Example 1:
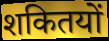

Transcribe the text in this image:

शकितयों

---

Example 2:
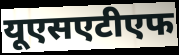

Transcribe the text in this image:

यूएसएटीएफ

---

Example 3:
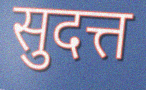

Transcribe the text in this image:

सुदत्त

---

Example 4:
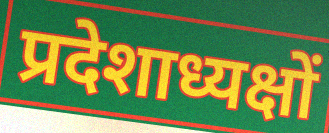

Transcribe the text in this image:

प्रदेशाध्यक्षों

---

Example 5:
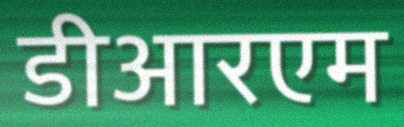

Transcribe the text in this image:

डीआरएम